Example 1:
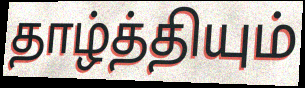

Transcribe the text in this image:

தாழ்த்தியும்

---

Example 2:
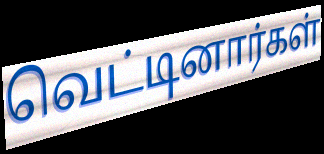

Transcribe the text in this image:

வெட்டினார்கள்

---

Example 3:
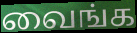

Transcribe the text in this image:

வைங்க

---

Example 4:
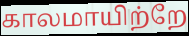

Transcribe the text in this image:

காலமாயிற்றே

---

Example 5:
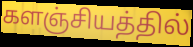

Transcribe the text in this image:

களஞ்சியத்தில்